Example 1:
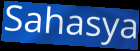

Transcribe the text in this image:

Sahasya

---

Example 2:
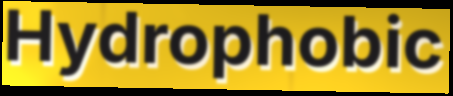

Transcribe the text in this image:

Hydrophobic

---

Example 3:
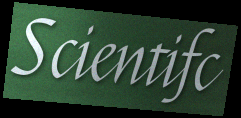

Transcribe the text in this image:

Scientifc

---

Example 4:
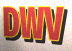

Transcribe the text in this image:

DWV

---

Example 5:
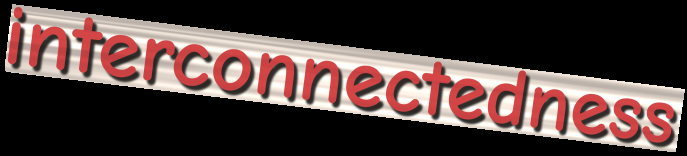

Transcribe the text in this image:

interconnectedness